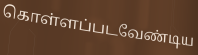
கொள்ளப்படவேண்டிய